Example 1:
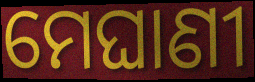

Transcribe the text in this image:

ମେଘାଣୀ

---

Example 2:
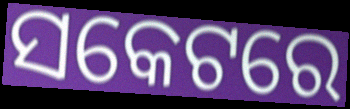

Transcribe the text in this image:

ସକେଟରେ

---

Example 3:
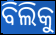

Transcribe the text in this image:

ବିଲିକୁ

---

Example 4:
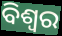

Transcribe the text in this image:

ବିଶ୍ଵର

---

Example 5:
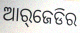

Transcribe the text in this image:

ଆର୍‌ଜେଡିର